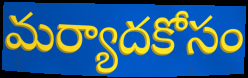
మర్యాదకోసం